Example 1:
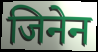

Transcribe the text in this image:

जिनेन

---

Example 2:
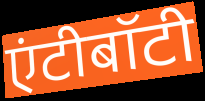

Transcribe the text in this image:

एंटीबॉटी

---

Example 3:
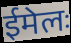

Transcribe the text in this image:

ईमेलः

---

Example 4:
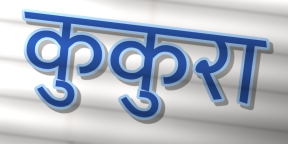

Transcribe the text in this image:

कुकुरा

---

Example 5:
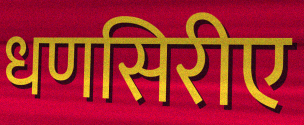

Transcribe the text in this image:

धणसिरीए